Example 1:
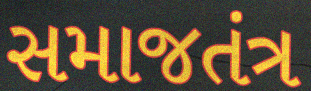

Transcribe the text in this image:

સમાજતંત્ર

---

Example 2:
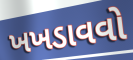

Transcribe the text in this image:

ખખડાવવો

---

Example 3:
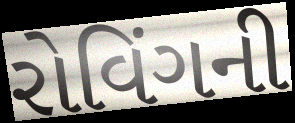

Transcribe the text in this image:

રોવિંગની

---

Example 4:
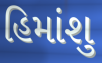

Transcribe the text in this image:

હિમાંશુ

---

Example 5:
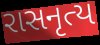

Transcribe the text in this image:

રાસનૃત્ય